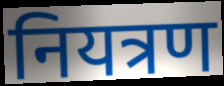
नियत्रण